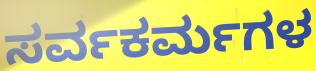
ಸರ್ವಕರ್ಮಗಳ